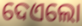
ଦେଏଲୋ